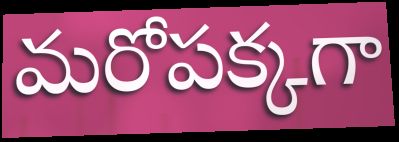
మరోపక్కగా